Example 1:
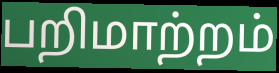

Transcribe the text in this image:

பறிமாற்றம்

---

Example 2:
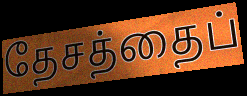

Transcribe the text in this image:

தேசத்தைப்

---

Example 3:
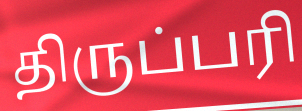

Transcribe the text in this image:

திருப்பரி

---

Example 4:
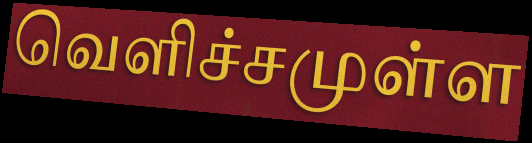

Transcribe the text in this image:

வெளிச்சமுள்ள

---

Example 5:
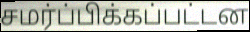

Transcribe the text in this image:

சமர்ப்பிக்கப்பட்டன